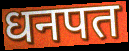
धनपत